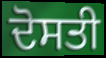
ਦੋਸਤੀ